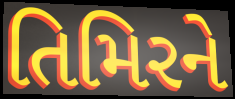
તિમિરને